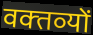
वक्‍तव्‍यों